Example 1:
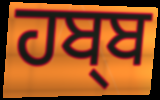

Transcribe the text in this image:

ਹਬ੍ਬ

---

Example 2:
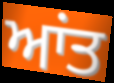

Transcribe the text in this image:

ਆਂਤ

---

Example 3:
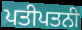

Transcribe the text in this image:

ਪਤੀਪਤਨੀ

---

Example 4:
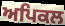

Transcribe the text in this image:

ਅਪਿਕਲ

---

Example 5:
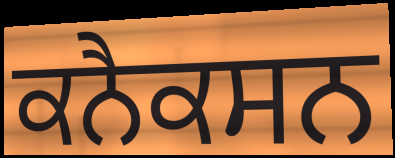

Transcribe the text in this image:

ਕਨੈਕਸਨ